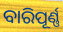
ବାରିପୂର୍ଣ୍ଣ